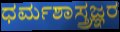
ಧರ್ಮಶಾಸ್ತ್ರಜ್ಞರ